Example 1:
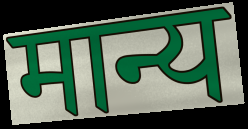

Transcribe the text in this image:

मान्य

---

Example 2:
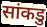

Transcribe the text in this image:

सांकडु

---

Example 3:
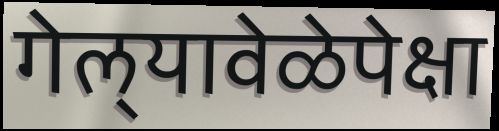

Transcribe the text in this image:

गेल्यावेळेपेक्षा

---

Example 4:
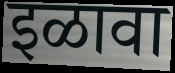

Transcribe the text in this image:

इळावा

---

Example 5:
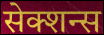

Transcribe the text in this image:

सेक्शन्स